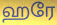
ஹரே